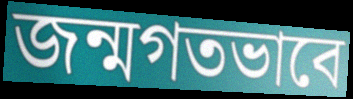
জন্মগতভাবে